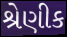
શ્રેણીક